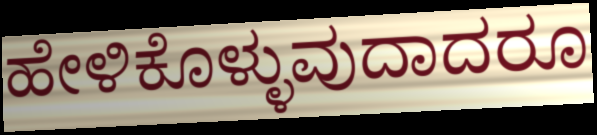
ಹೇಳಿಕೊಳ್ಳುವುದಾದರೂ